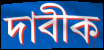
দাবীক